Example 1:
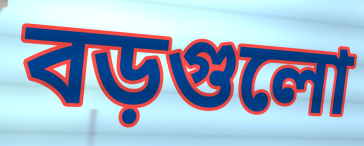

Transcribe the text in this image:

বড়গুলো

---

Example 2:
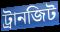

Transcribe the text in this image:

ট্রানজিট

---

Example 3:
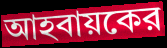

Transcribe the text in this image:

আহবায়কের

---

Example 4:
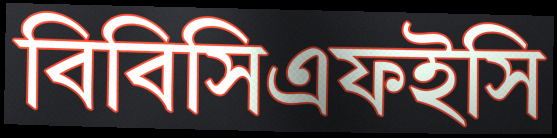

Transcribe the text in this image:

বিবিসিএফইসি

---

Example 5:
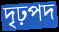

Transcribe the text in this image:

দৃঢ়পদ